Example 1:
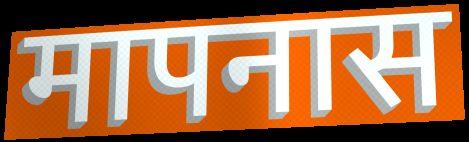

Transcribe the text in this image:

मापनास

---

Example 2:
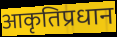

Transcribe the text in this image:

आकृतिप्रधान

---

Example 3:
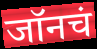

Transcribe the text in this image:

जॉनचं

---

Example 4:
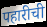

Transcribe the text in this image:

पहारीची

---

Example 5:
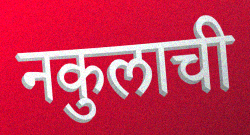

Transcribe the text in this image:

नकुलाची